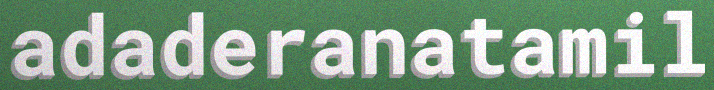
adaderanatamil